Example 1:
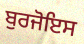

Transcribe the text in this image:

ਬੁਰਜੋਇਸ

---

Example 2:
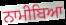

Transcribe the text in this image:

ਨਾਮੀਬਿਆ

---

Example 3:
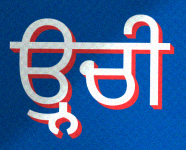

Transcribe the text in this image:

ਉ੍ਨਚੀ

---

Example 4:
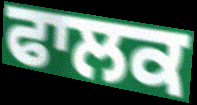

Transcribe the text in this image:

ਫਾਲਕ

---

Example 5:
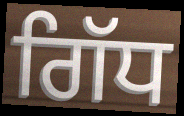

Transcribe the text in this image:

ਗਿੱਧ